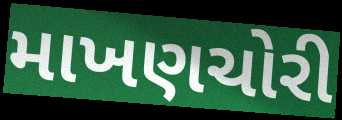
માખણચોરી